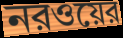
নরওয়ের